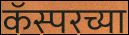
कॅस्परच्या